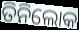
ତିନିଲୋକ